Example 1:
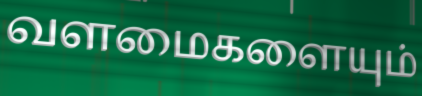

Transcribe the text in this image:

வளமைகளையும்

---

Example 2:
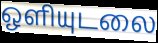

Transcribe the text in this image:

ஒளியுடலை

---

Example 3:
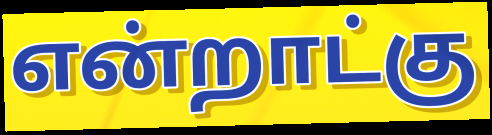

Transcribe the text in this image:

என்றாட்கு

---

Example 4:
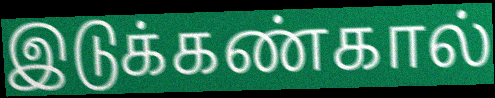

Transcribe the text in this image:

இடுக்கண்கால்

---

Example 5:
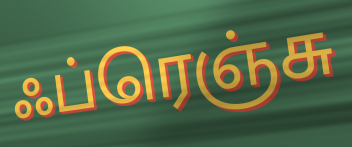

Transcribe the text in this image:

ஃப்ரெஞ்சு